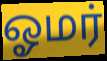
ஓமர்